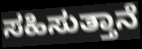
ಸಹಿಸುತ್ತಾನೆ